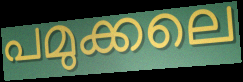
പമുക്കലെ